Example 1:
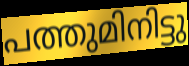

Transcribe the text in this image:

പത്തുമിനിട്ടു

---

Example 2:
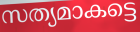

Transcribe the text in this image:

സത്യമാകട്ടെ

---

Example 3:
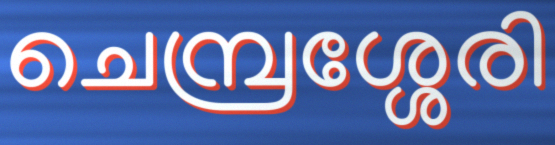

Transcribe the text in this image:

ചെമ്പ്രശ്ശേരി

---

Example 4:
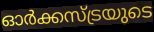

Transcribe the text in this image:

ഓർക്കസ്ട്രയുടെ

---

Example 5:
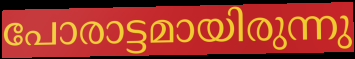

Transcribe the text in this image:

പോരാട്ടമായിരുന്നു